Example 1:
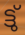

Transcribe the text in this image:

ട്ടു്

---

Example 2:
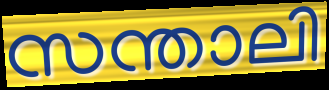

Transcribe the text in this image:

സന്താലി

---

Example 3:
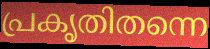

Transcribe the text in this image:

പ്രകൃതിതന്നെ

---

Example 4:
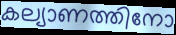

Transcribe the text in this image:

കല്യാണത്തിനോ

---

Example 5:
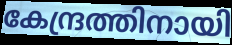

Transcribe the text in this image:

കേന്ദ്രത്തിനായി